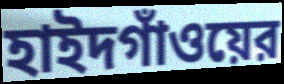
হাইদগাঁওয়ের